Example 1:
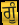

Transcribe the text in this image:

ਗੂੰ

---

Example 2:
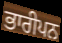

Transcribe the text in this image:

ਭਾਰੀਪਨ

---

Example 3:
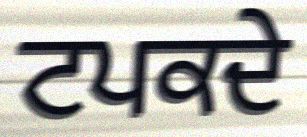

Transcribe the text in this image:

ਟਪਕਦੇ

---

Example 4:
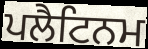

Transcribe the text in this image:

ਪਲੈਟਿਨਮ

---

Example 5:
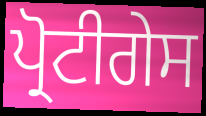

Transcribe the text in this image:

ਪ੍ਰੋਟੀਗੇਸ